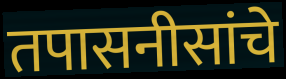
तपासनीसांचे